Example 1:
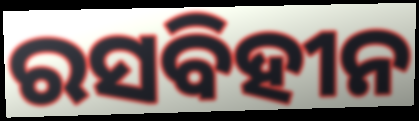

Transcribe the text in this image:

ରସବିହୀନ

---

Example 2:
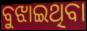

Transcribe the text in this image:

ବୁଝାଇଥିବା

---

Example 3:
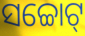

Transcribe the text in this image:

ସଚ୍ଚୋଟ୍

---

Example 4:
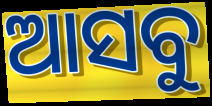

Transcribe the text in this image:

ଆସବୁ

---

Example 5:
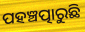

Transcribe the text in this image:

ପହଞ୍ଚତ୍ପାରୁଛି